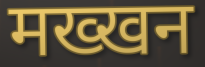
मख्खन